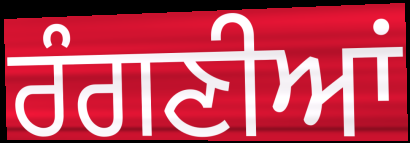
ਰੰਗਣੀਆਂ